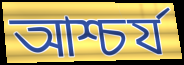
আশ্চৰ্য